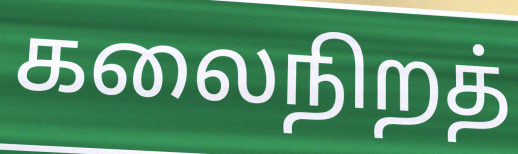
கலைநிறத்